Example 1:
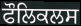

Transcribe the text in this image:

ਫੌਲਿਕਲਸ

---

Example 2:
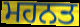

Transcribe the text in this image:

ਮਹਨਤ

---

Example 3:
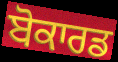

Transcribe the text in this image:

ਬੋਕਾਰਡ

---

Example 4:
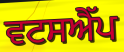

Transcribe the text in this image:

ਵਟਸਐੱਪ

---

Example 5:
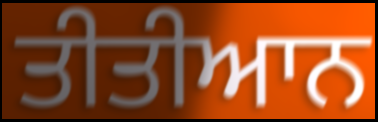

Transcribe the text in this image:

ਤੀਤੀਆਨ